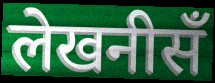
लेखनीसँ